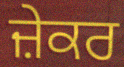
ਜ਼ੇਕਰ